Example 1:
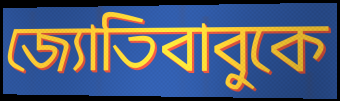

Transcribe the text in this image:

জ্যোতিবাবুকে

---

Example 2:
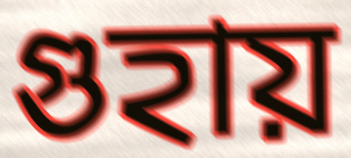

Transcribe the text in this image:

গুহায়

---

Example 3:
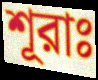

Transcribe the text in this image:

শূরাঃ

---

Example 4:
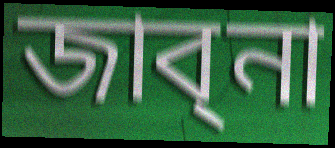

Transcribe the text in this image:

জাব্‌না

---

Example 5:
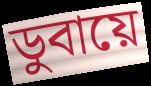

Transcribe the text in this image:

ডুবায়ে